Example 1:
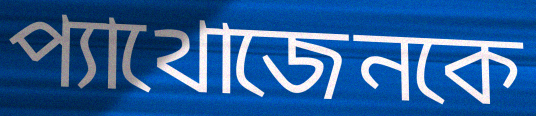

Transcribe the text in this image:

প্যাথোজেনকে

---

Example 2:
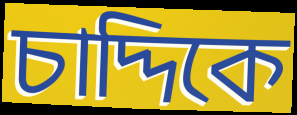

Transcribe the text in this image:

চাদ্দিকে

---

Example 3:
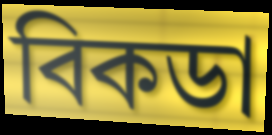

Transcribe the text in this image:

বিকডা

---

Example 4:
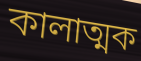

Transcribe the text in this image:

কালাত্মক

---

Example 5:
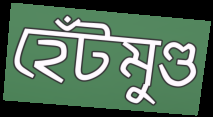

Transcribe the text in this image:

হেঁটমুণ্ড